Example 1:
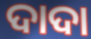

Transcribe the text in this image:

ଦାଦା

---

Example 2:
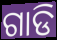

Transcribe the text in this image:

ଗାଡି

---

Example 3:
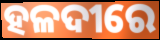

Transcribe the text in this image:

ହଳଦୀରେ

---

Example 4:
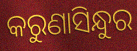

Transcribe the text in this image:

କରୁଣାସିନ୍ଧୁର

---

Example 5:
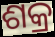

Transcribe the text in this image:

ଶକ୍ର